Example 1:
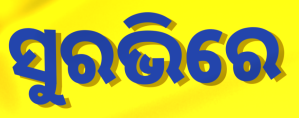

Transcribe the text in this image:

ସୁରଭିରେ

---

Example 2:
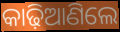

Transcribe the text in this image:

କାଢ଼ିଆଣିଲେ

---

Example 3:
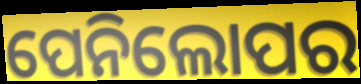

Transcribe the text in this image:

ପେନିଲୋପର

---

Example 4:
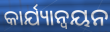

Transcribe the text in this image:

କାର୍ଯ୍ୟାନ୍ୱୟନ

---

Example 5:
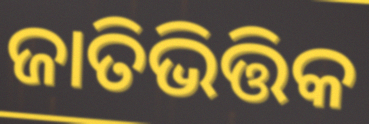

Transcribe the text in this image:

ଜାତିଭିତ୍ତିକ